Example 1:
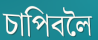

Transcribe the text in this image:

চাপিবলৈ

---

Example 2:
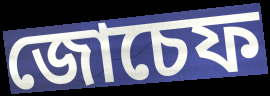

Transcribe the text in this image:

জোচেফ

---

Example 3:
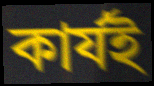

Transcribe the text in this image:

কাৰ্যই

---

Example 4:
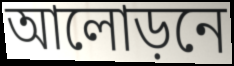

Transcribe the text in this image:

আলোড়নে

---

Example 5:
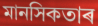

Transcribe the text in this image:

মানসিকতাৰ